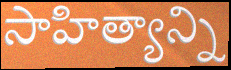
సాహిత్యాన్ని